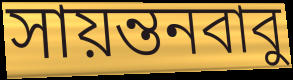
সায়ন্তনবাবু